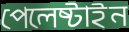
পেলেষ্টাইন